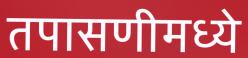
तपासणीमध्ये